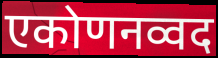
एकोणनव्वद